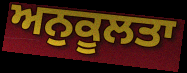
ਅਨੁਕੂਲਤਾ